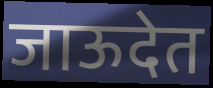
जाऊदेत